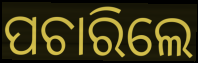
ପଚାରିଲେ